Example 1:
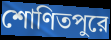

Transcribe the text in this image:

শোণিতপুরে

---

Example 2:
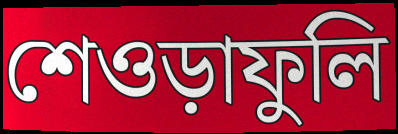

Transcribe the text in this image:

শেওড়াফুলি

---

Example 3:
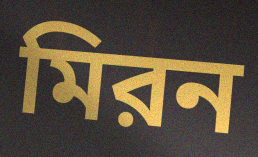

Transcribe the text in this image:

মিরন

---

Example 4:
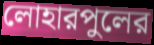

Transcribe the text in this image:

লোহারপুলের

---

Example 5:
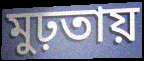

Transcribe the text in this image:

মুঢ়তায়